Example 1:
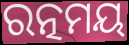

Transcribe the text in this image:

ରତ୍ନମୟ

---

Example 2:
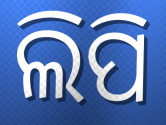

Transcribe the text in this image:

ଲିପି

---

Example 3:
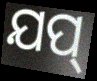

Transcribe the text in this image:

ଯପ୍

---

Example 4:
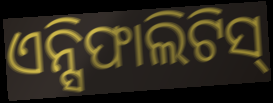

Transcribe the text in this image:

ଏନ୍ସିଫାଲିଟିସ୍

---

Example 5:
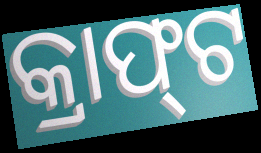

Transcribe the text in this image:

କ୍ରାଫ୍‌ଟ